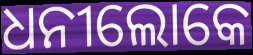
ଧନୀଲୋକେ